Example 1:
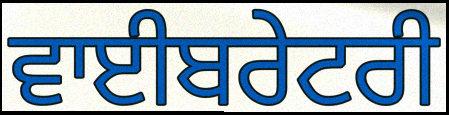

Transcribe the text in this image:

ਵਾਈਬਰੇਟਰੀ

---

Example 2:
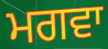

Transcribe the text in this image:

ਮਗਵਾ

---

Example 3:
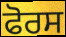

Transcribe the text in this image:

ਫੋਰਸ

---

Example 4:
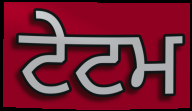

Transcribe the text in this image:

ਟੇਟਮ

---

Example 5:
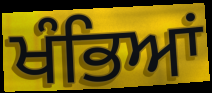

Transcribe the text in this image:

ਖੰਭਿਆਂ